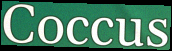
Coccus